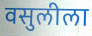
वसुलीला